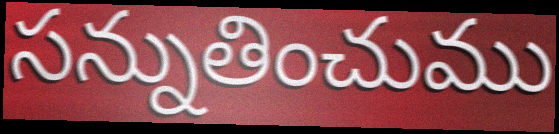
సన్నుతించుము